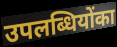
उपलब्धियोंका